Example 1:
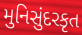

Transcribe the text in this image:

મુનિસુંદરકૃત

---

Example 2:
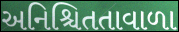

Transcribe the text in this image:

અનિશ્ચિતતાવાળા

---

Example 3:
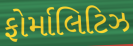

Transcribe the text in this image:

ફોર્માલિટિઝ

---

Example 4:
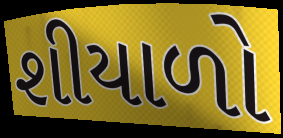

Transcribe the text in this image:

શીયાળો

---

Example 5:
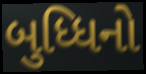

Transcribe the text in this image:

બુધ્ધિનો